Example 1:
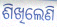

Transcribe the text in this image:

ଶିଖିଲେଣି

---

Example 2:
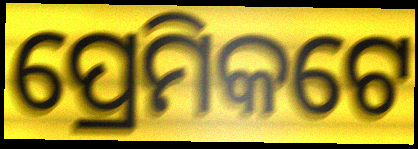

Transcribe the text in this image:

ପ୍ରେମିକଟେ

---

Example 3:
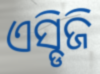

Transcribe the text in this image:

ଏସ୍ଡିଜି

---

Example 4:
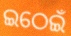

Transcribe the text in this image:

ଇଠେଇଁ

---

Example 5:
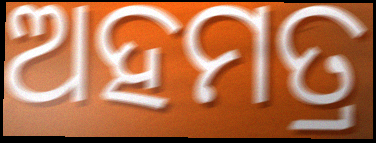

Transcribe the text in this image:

ଅହମତ୍ର